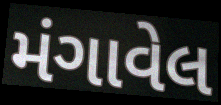
મંગાવેલ